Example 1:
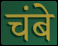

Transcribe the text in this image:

चंबे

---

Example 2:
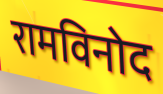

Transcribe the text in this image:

रामविनोद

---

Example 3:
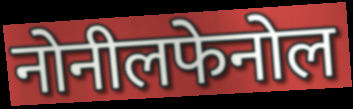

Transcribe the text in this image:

नोनीलफेनोल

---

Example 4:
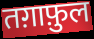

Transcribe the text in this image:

तग़ाफ़ुल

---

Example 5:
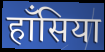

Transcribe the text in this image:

हाँसिया